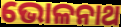
ଭୋଳନାଥ